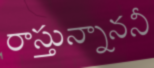
రాస్తున్నాననీ